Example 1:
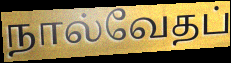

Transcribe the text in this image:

நால்வேதப்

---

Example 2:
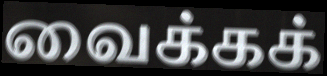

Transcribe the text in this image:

வைக்கக்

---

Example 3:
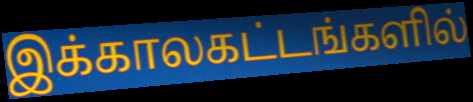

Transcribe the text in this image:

இக்காலகட்டங்களில்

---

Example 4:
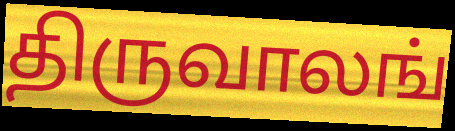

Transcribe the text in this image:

திருவாலங்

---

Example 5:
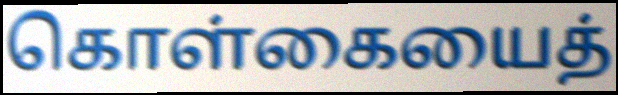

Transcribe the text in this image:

கொள்கையைத்